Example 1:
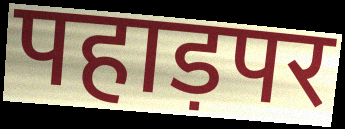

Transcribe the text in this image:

पहाड़पर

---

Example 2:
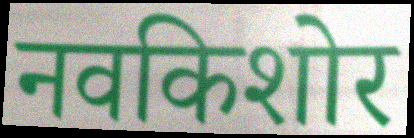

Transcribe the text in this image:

नवकिशोर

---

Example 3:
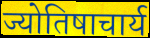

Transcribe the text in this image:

ज्योतिषाचार्य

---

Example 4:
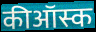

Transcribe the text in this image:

कीऑस्क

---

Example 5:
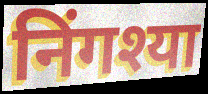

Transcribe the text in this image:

निंगश्या